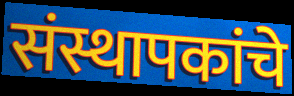
संस्थापकांचे